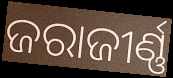
ଜରାଜୀର୍ଣ୍ଣ